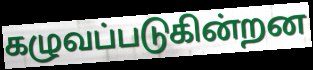
கழுவப்படுகின்றன